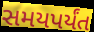
સમયપર્યંત